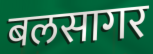
बलसागर